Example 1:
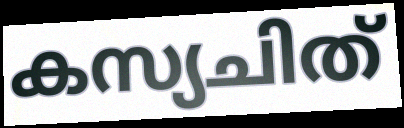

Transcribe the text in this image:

കസ്യചിത്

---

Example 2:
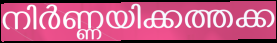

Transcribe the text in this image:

നിർണ്ണയിക്കത്തക്ക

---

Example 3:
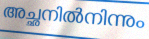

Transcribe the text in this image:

അച്ഛനിൽനിന്നും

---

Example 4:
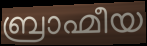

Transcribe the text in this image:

ബ്രാഹ്മീയ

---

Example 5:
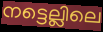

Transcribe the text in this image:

നട്ടെല്ലിലെ